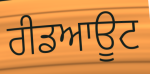
ਰੀਡਆਊਟ